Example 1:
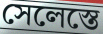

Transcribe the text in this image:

সেলেস্তে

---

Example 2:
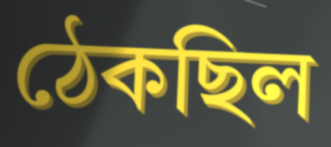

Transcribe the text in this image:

ঠেকছিল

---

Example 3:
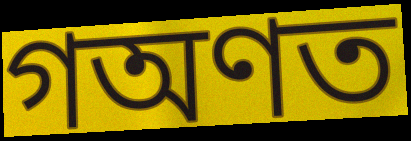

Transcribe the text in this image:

গঅণত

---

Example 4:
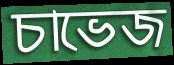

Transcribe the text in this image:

চাভেজ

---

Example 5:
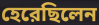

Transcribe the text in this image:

হেরেছিলেন